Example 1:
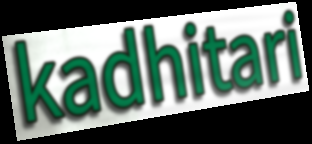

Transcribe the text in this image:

kadhitari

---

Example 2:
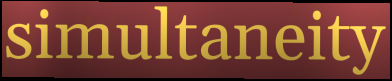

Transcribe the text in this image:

simultaneity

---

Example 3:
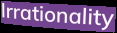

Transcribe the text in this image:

Irrationality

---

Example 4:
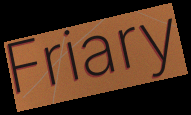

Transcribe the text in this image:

Friary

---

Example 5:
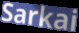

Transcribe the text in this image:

Sarkai